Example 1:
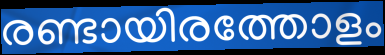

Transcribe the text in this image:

രണ്ടായിരത്തോളം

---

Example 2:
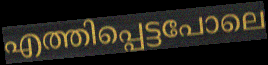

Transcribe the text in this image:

എത്തിപ്പെട്ടപോലെ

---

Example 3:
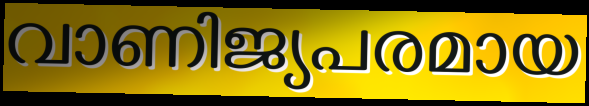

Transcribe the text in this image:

വാണിജ്യപരമായ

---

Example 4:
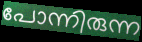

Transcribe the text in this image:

പോന്നിരുന്ന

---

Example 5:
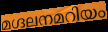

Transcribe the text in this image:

മഗ്ദലനമറിയം